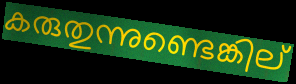
കരുതുന്നുണ്ടെങ്കില്